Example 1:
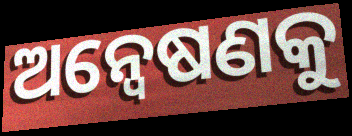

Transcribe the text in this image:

ଅନ୍ବେଷଣକୁ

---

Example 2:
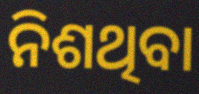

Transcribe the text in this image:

ନିଶଥିବା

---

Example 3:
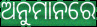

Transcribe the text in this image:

ଅନୁମାନରେ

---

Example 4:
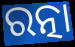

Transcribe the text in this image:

ରତ୍ନା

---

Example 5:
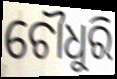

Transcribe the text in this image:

ଚୌଧୁରି